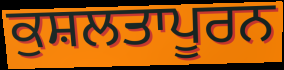
ਕੁਸ਼ਲਤਾਪੂਰਨ